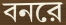
বনরে